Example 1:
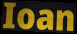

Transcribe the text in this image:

Ioan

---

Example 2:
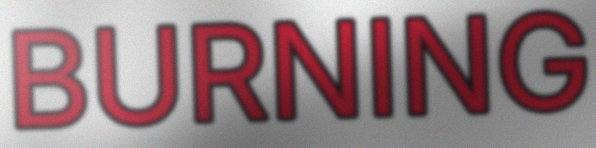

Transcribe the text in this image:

BURNING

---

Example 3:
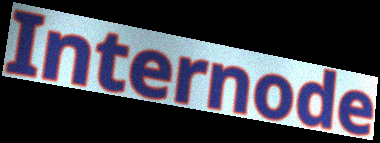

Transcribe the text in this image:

Internode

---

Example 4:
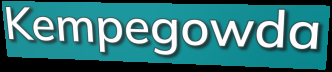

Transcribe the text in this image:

Kempegowda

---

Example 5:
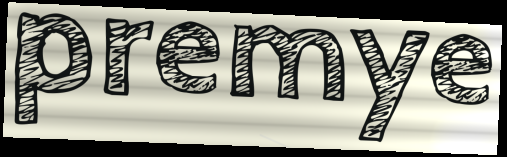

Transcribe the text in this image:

premye